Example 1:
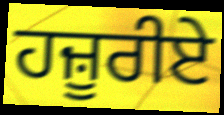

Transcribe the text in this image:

ਹਜ਼ੂਰੀਏ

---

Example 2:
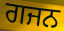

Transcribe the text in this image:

ਗਜਨ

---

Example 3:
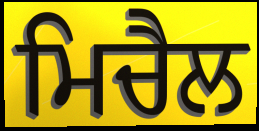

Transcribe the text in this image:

ਮਿਚੈਲ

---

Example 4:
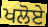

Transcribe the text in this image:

ਖਲੋਏ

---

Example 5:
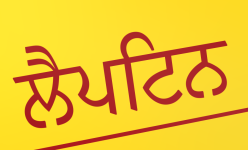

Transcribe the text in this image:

ਲੈਪਟਿਨ